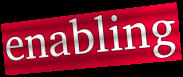
enabling